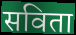
सविता